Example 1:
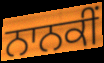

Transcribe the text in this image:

ਨਾਨਕੀਂ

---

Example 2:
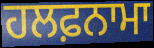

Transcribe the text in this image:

ਹਲਫ਼ਨਾਮਾ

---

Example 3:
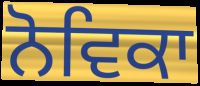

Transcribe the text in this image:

ਨੋਵਿਕਾ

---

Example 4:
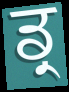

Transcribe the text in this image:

ਡ੍ਰ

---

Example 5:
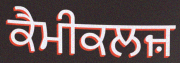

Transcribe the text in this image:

ਕੈਮੀਕਲਜ਼